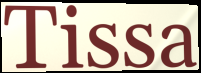
Tissa